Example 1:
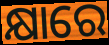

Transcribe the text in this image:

କ୍ଷାରେ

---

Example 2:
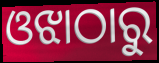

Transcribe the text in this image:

ଓଝାଠାରୁ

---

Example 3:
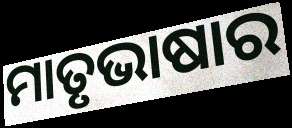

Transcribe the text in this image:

ମାତୃଭାଷାର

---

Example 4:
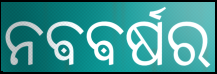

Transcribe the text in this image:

ନଵଵର୍ଷର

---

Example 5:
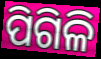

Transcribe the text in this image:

ପିଗିଳି